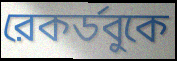
রেকর্ডবুকে